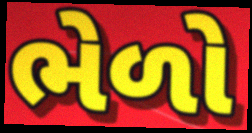
ભેળો